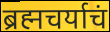
ब्रह्मचर्याचं